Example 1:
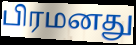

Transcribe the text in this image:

பிரமனது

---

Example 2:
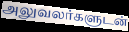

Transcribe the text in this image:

அலுவலர்களுடன்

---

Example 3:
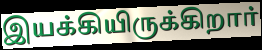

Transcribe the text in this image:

இயக்கியிருக்கிறார்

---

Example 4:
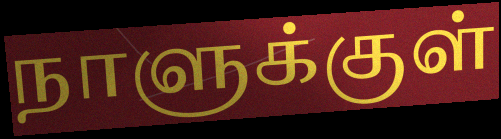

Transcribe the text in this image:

நாளுக்குள்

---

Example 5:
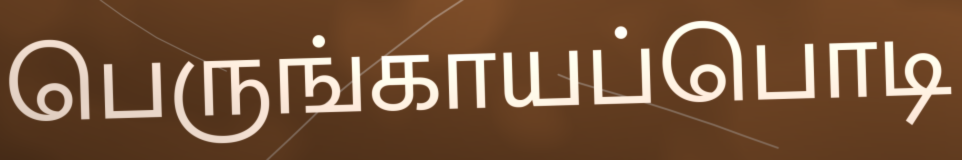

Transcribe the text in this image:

பெருங்காயப்பொடி